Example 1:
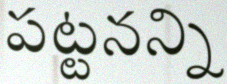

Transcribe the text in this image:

పట్టనన్ని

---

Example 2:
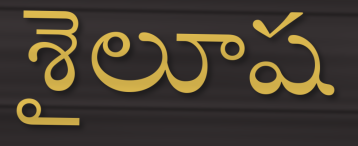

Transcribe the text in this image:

శైలూష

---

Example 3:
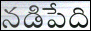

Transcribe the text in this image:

నడిపేది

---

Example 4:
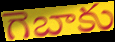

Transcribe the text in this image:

గెబాకు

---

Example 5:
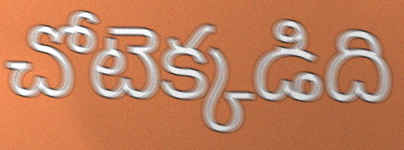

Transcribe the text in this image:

చోటెక్కడిది